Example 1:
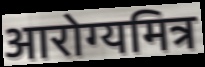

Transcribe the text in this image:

आरोग्यमित्र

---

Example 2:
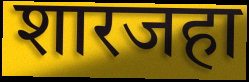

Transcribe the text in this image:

शारजहा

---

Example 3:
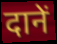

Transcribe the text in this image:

दानें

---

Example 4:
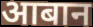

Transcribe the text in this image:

आबान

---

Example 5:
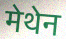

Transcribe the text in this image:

मेथेन